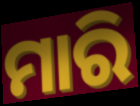
ମାରି